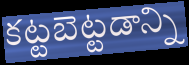
కట్టబెట్టడాన్ని